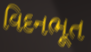
વિદનભૂત